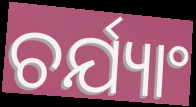
ଚର୍ଯ୍ୟାଂ